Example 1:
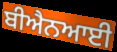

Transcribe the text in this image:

ਬੀਐਨਆਈ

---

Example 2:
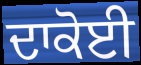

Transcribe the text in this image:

ਦਾਕੋਈ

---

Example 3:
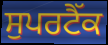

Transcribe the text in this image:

ਸੁਪਰਟੈੱਕ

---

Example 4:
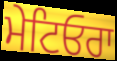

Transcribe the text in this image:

ਮੇਟਿਓਰਾ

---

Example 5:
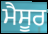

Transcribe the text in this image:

ਮੈਸੂਰ